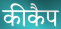
कीकैप